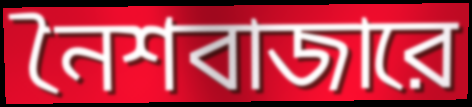
নৈশবাজারে